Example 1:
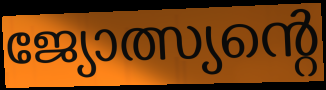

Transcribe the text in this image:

ജ്യോത്സ്യന്റെ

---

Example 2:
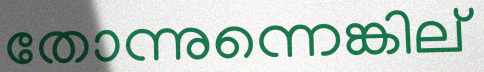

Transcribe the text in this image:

തോന്നുന്നെങ്കില്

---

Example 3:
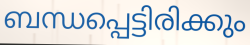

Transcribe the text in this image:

ബന്ധപ്പെട്ടിരിക്കും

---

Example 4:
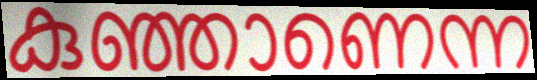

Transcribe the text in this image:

കുഞ്ഞാണെന്ന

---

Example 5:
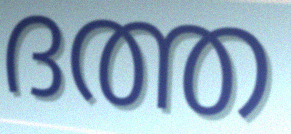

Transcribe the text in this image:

ദത്ത